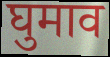
घुमाव